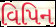
વિપિન